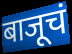
बाजूचं